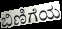
ಬಿಣಿಗೆಯ